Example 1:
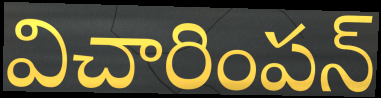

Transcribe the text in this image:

విచారింపన్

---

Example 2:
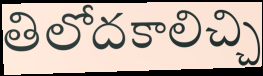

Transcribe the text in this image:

తిలోదకాలిచ్చి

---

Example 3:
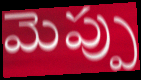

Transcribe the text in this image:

మెప్పు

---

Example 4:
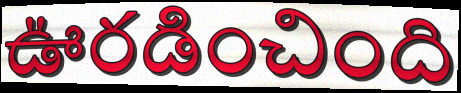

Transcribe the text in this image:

ఊరడించింది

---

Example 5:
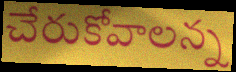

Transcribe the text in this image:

చేరుకోవాలన్న